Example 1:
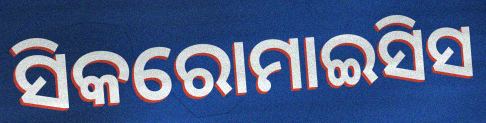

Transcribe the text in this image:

ସିକରୋମାଇସିସ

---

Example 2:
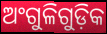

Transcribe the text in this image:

ଅଂଗୁଳିଗୁଡ଼ିକ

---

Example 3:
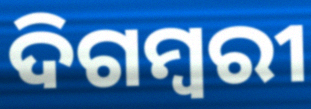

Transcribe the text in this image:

ଦିଗମ୍ୱରୀ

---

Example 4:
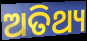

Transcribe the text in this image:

ଅତିଥ୍ୟ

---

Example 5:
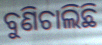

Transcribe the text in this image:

ବୁଣିଚାଲିଛି